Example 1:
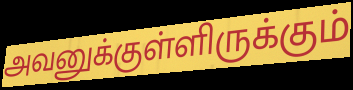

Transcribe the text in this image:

அவனுக்குள்ளிருக்கும்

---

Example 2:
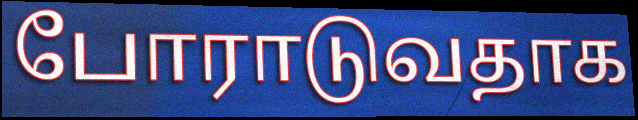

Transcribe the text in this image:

போராடுவதாக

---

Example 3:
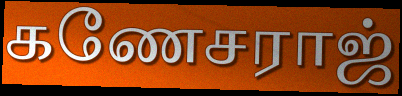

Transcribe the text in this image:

கணேசராஜ்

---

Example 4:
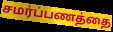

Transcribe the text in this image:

சமர்ப்பணத்தை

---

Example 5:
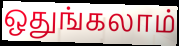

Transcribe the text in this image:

ஒதுங்கலாம்